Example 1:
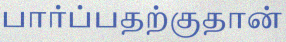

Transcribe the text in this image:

பார்ப்பதற்குதான்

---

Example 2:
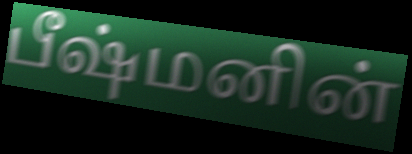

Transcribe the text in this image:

பீஷ்மனின்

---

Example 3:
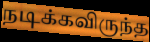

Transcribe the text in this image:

நடிக்கவிருந்த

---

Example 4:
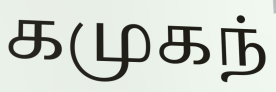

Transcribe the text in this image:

கமுகந்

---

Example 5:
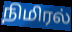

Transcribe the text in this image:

நிமிரல்